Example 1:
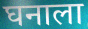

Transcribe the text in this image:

घनाला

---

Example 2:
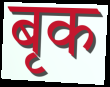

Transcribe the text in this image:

बृक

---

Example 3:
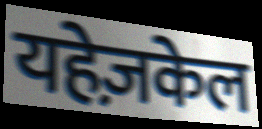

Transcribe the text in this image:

यहेज़केल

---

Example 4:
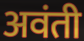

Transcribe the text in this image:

अवंती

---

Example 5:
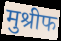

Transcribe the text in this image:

मुश्रीफ